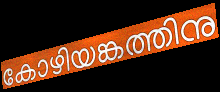
കോഴിയങ്കത്തിനു